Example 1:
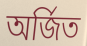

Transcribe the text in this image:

অৰ্জিত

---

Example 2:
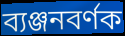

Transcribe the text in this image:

ব্যঞ্জনবৰ্ণক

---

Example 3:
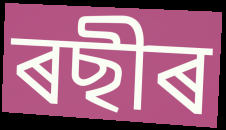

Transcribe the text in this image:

ৰছীৰ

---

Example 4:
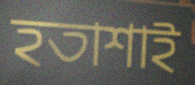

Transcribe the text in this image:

হতাশাই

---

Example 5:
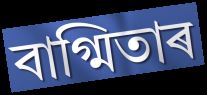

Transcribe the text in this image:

বাগ্মিতাৰ